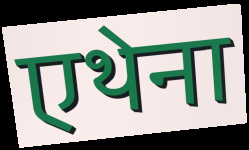
एथेना